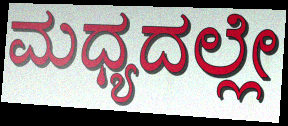
ಮಧ್ಯದಲ್ಲೇ